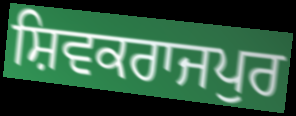
ਸ਼ਿਵਕਰਾਜਪੁਰ